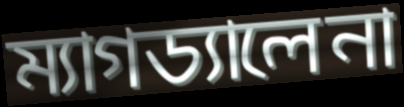
ম্যাগড্যালেনা